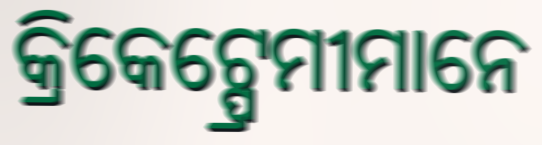
କ୍ରିକେଟ୍ପ୍ରେମୀମାନେ